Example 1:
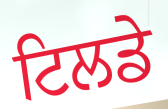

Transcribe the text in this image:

ਟਿਲਡੇ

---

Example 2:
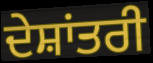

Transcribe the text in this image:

ਦੇਸ਼ਾਂਤਰੀ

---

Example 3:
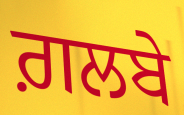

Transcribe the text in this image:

ਗ਼ਲਬੇ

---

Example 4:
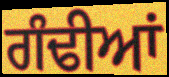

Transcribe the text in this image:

ਗੰਢੀਆਂ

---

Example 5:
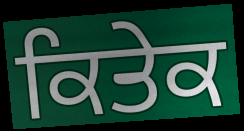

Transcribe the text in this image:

ਕਿਤੇਕ